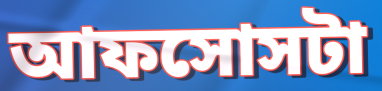
আফসোসটা